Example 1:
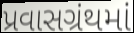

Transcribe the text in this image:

પ્રવાસગ્રંથમાં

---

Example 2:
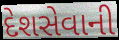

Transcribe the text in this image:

દેશસેવાની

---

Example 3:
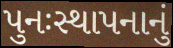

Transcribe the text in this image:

પુનઃસ્થાપનાનું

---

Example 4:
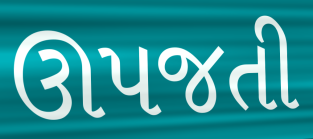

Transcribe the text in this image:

ઊપજતી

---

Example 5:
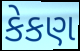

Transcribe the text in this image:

કેકણ